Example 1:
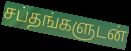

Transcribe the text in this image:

சப்தங்களுடன்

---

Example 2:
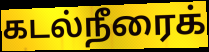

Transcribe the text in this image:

கடல்நீரைக்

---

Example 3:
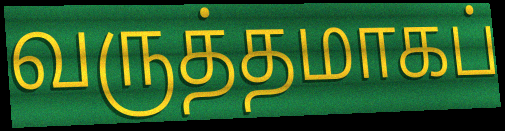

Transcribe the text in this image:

வருத்தமாகப்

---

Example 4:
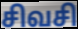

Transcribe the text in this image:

சிவசி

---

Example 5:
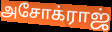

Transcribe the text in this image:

அசோக்ராஜ்